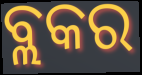
ବ୍ଲକର